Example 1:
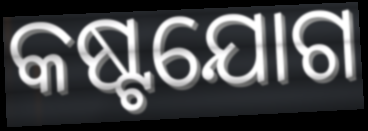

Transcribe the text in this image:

କଷ୍ଟଯୋଗ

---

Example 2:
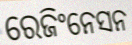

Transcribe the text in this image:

ରେଜିଂନେସନ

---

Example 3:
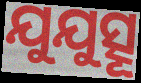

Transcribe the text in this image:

ଯୁଯୁତ୍ସୂ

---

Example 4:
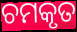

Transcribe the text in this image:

ଚମକୃତ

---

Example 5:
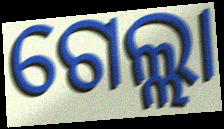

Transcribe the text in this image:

ଗେଲ୍ଲା